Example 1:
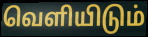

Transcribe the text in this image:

வெளியிடும்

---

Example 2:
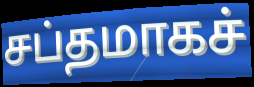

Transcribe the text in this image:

சப்தமாகச்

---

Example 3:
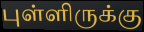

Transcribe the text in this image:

புள்ளிருக்கு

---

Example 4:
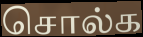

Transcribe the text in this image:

சொல்க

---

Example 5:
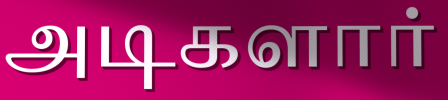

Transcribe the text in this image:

அடிகளார்